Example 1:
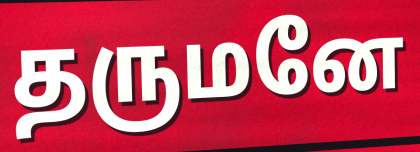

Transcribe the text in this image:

தருமனே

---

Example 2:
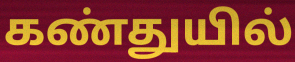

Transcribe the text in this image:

கண்துயில்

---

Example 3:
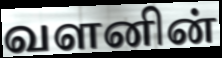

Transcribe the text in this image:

வளனின்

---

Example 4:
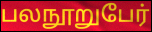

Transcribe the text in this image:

பலநூறுபேர்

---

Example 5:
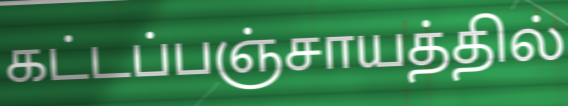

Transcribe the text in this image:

கட்டப்பஞ்சாயத்தில்